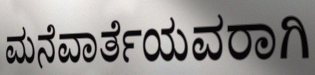
ಮನೆವಾರ್ತೆಯವರಾಗಿ